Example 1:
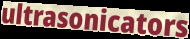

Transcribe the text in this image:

ultrasonicators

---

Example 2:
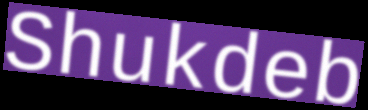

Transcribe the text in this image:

Shukdeb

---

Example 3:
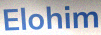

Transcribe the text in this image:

Elohim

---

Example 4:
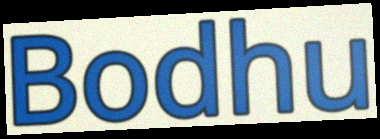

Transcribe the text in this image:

Bodhu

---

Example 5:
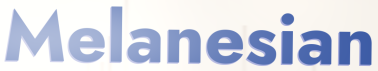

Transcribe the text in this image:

Melanesian